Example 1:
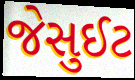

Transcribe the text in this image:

જેસુઈટ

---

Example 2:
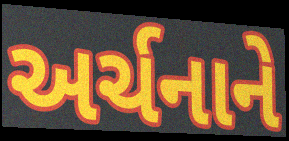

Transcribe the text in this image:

અર્ચનાને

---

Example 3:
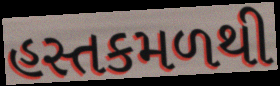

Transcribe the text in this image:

હસ્તકમળથી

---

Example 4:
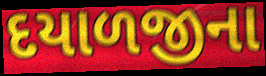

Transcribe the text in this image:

દયાળજીના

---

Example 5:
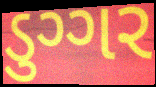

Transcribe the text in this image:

ડુગ્ગર